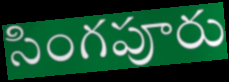
సింగపూరు